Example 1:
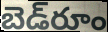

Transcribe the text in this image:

బెడ్‌రూం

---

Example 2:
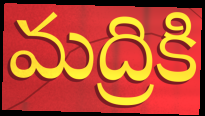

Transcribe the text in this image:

మద్రికి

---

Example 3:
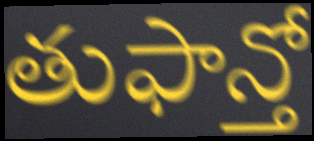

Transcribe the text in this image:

తుఫాన్తో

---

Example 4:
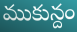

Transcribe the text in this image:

ముకున్దం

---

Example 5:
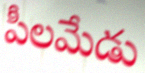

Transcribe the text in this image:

పీలమేడు